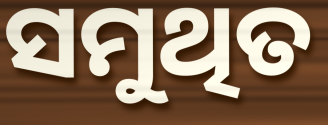
ସମୁଥିତ